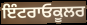
ਇੰਟਰਾਓਕੂਲਰ